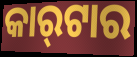
କାର୍‍ଟାର